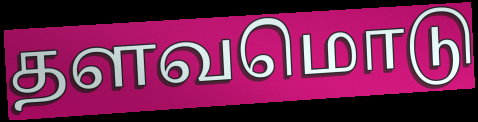
தளவமொடு